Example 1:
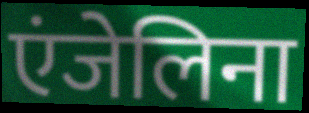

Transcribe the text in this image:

एंजेलिना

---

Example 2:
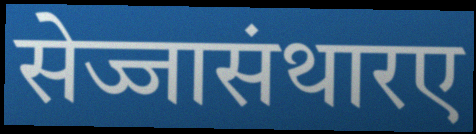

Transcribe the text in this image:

सेज्जासंथारए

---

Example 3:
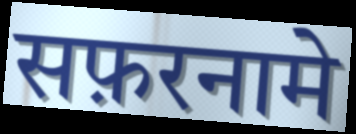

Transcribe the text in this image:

सफ़रनामे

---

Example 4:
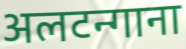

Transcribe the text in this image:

अलटन्गाना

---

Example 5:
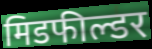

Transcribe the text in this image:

मिडफील्डर